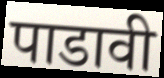
पाडावी